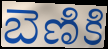
బెణికి